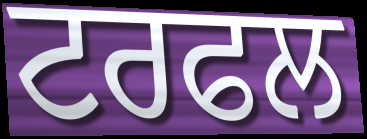
ਟਰਫਲ